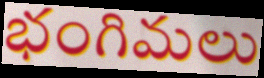
భంగిమలు